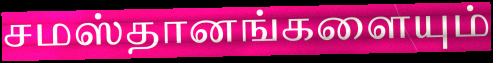
சமஸ்தானங்களையும்